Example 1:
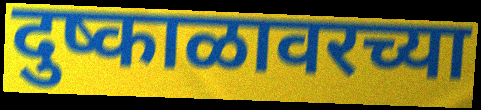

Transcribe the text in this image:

दुष्काळावरच्या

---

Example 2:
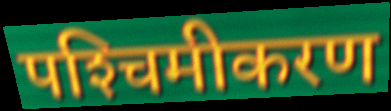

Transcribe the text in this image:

पश्चिमीकरण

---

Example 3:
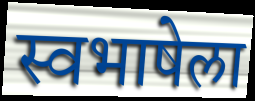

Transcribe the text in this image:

स्वभाषेला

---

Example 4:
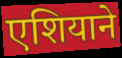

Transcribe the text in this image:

एशियाने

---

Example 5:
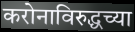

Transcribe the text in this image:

करोनाविरुद्धच्या